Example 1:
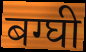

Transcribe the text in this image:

बग्घी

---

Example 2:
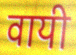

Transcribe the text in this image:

वायी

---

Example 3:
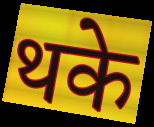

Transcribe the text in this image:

थके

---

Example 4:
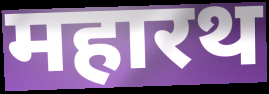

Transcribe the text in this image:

महारथ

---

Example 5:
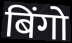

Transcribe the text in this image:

बिंगो